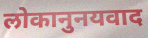
लोकानुनयवाद